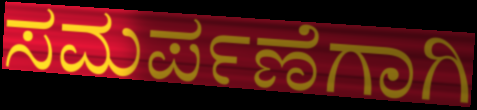
ಸಮರ್ಪಣೆಗಾಗಿ